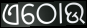
ଏଠୋଉ